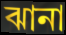
ঝানা